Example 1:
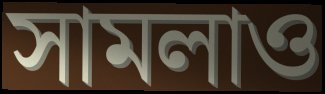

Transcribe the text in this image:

সামলাও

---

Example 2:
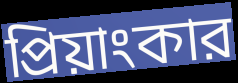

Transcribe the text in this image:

প্রিয়াংকার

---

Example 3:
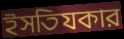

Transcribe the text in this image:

ইসতিযকার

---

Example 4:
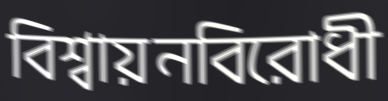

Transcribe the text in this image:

বিশ্বায়নবিরোধী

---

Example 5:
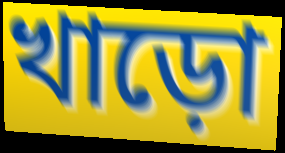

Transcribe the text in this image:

খাড়ো